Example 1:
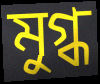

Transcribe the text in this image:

মুগ্ধ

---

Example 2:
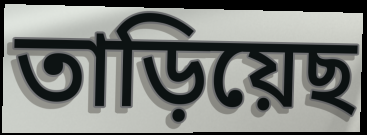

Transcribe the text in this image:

তাড়িয়েছ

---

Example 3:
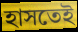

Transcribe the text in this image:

হাসতেই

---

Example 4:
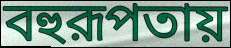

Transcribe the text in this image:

বহুরূপতায়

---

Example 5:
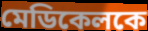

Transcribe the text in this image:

মেডিকেলকে